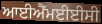
ਆਈਐੱਮਈਈਸੀ